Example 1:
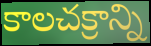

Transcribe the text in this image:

కాలచక్రాన్ని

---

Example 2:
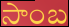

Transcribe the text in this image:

సాంబ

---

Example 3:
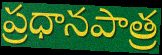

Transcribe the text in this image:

ప్రధానపాత్ర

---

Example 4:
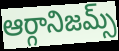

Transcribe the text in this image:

ఆర్గానిజమ్స్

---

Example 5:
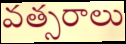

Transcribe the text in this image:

వత్సరాలు